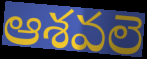
ఆశవలె